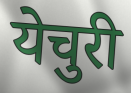
येचुरी